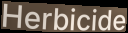
Herbicide